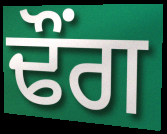
ਢੌਂਗ